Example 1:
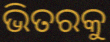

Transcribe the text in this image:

ଭିତରକୁ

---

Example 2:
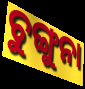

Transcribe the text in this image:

ଚୁଙ୍ଗୁନା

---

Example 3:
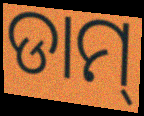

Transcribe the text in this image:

ଡାମ୍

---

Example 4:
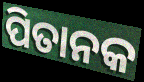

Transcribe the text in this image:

ପିତାନକ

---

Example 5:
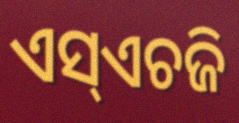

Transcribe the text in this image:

ଏସ୍ଏଚଜି